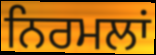
ਨਿਰਮਲਾਂ